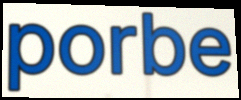
porbe